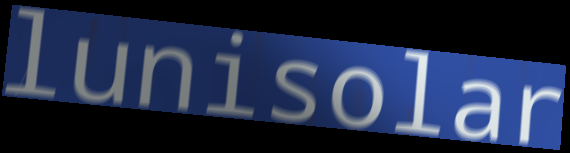
lunisolar